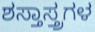
ಶಸ್ತಾಸ್ತ್ರಗಳ